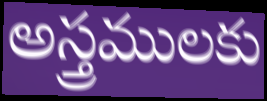
అస్త్రములకు